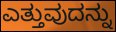
ಎತ್ತುವುದನ್ನು